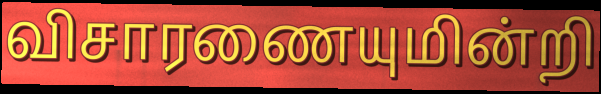
விசாரணையுமின்றி